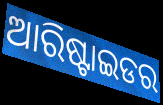
ଆରିଷ୍ଟାଇଡର